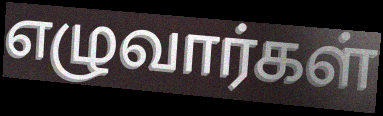
எழுவார்கள்